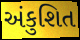
અંકુશિત